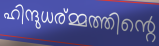
ഹിന്ദുധര്മ്മത്തിന്റെ